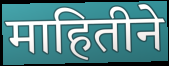
माहितीने